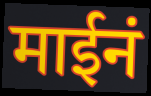
माईनं